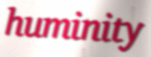
huminity